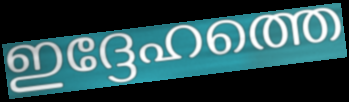
ഇദ്ദേഹത്തെ